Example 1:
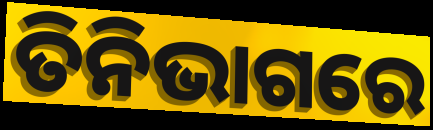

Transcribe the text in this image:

ତିନିଭାଗରେ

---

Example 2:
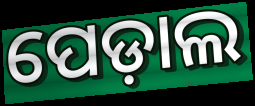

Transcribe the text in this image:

ପେଡ଼ାଲ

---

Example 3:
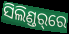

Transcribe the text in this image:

ସିଲିଣ୍ଡର୍‌ରେ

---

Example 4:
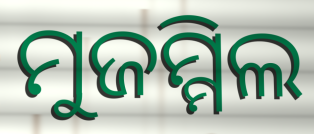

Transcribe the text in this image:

ମୁଜମ୍ମିଲ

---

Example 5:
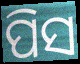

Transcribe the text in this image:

ପିସ